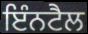
ਇੰਨਟੈਲ